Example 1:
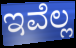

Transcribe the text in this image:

ಇವೆಲ್ಲ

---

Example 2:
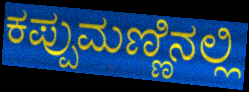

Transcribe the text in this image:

ಕಪ್ಪುಮಣ್ಣಿನಲ್ಲಿ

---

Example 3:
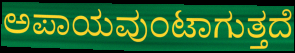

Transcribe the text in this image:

ಅಪಾಯವುಂಟಾಗುತ್ತದೆ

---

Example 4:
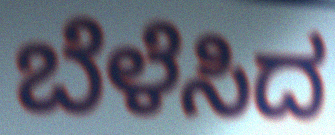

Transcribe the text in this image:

ಬೆಳೆಸಿದ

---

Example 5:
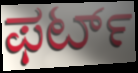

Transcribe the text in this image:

ಫರ್ಟ್